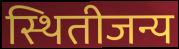
स्थितीजन्य